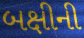
બક્ષીની